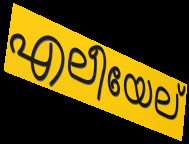
എലീയേല്